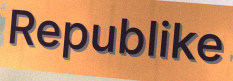
Republike